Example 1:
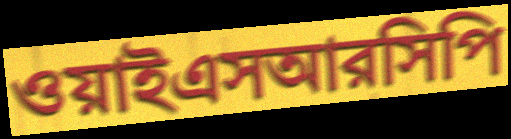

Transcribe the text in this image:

ওয়াইএসআরসিপি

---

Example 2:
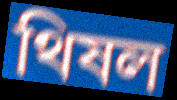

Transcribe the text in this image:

থিষল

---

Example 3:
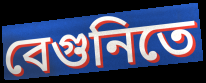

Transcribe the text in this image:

বেগুনিতে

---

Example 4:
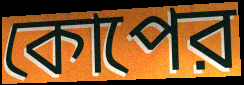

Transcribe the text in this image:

কোপের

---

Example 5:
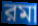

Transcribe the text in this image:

রমা